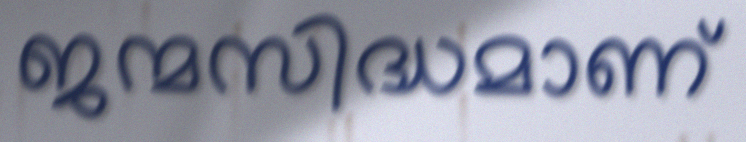
ജന്മസിദ്ധമാണ്